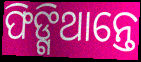
ଫିଙ୍ଗିଥାନ୍ତେ